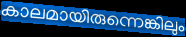
കാലമായിരുന്നെങ്കിലും